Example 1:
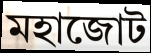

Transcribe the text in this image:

মহাজোট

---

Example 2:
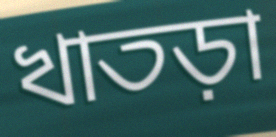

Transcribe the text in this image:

খাতড়া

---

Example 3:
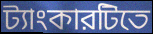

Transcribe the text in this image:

ট্যাংকারটিতে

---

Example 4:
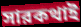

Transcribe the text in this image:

সারকথাই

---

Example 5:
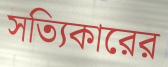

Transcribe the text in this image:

সত্যিকারের